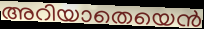
അറിയാതെയെൻ